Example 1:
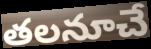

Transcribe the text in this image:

తలనూచే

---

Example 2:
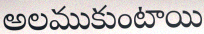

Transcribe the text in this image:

అలముకుంటాయి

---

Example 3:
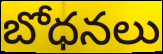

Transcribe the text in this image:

బోధనలు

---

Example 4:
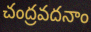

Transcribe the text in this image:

చంద్రవదనాం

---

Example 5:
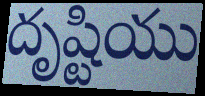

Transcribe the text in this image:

దృష్టియు